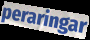
peraringar